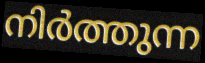
നിർത്തുന്ന